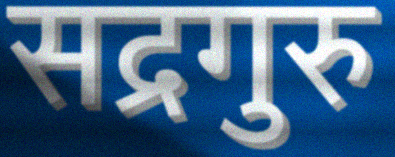
सद्रगुरु